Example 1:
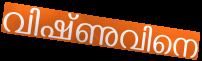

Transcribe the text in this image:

വിഷ്‌ണുവിനെ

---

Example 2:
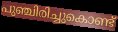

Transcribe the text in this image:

പുഞ്ചിരിച്ചുകൊണ്ട്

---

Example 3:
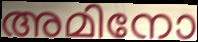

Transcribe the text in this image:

അമിനോ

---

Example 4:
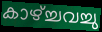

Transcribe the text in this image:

കാഴ്ച്ചവച്ചു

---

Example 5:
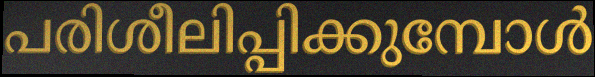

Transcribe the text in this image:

പരിശീലിപ്പിക്കുമ്പോൾ